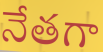
నేతగా